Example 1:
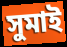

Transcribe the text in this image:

সুমাই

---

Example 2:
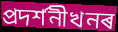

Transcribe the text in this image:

প্ৰদৰ্শনীখনৰ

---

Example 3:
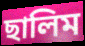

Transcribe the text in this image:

ছালিম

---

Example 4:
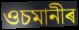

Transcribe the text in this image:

ওচমানীৰ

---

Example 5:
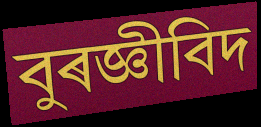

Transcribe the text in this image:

বুৰজ্ঞীবিদ